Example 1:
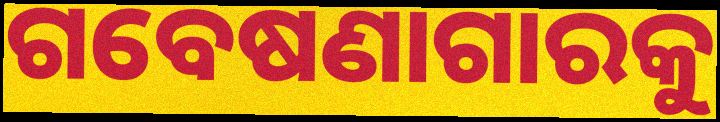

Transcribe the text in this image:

ଗବେଷଣାଗାରକୁ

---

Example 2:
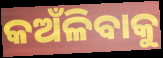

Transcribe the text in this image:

କଅଁଳିବାକୁ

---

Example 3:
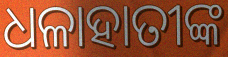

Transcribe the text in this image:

ଧଳାହାତୀଙ୍କ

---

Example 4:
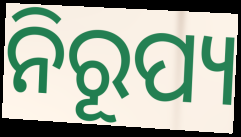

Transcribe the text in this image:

ନିରୂପ୍ୟ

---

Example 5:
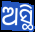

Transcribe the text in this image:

ଅସ୍ଥି